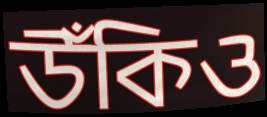
উঁকিও